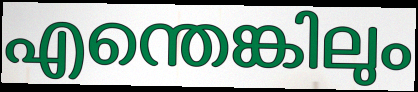
എന്തെങ്കിലും